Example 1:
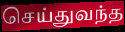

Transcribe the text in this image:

செய்துவந்த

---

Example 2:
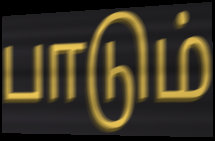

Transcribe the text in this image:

பாடும்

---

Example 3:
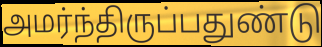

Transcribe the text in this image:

அமர்ந்திருப்பதுண்டு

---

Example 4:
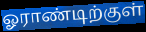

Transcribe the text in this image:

ஓராண்டிற்குள்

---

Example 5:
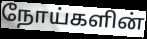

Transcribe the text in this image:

நோய்களின்